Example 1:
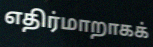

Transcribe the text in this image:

எதிர்மாறாகக்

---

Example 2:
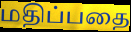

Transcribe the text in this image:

மதிப்பதை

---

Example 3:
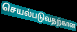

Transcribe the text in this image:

செயல்படுவதற்கான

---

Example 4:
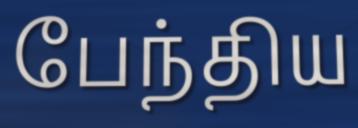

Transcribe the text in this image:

பேந்திய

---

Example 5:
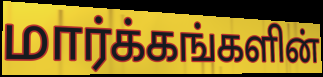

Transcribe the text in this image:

மார்க்கங்களின்